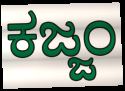
ಕಜ್ಜಂ